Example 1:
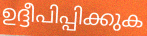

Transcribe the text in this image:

ഉദ്ദീപിപ്പിക്കുക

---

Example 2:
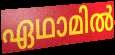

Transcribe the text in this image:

ഏഥാമിൽ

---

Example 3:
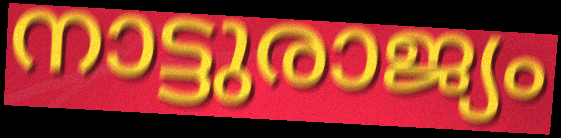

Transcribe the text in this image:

നാട്ടുരാജ്യം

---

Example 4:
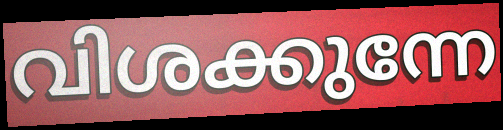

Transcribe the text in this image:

വിശക്കുന്നേ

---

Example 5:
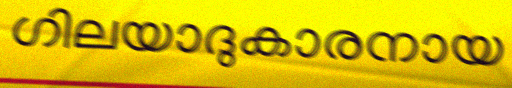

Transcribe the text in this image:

ഗിലയാദുകാരനായ